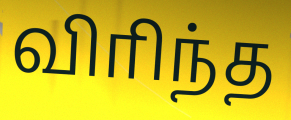
விரிந்த